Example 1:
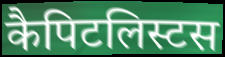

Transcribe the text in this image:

कैपिटलिस्टस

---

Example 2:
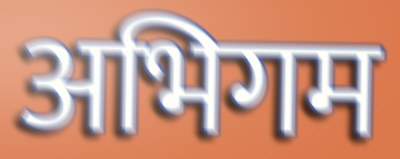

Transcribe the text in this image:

अभिगम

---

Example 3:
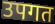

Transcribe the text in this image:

उपगत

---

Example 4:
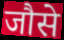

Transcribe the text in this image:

जौसे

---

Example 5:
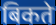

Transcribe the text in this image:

बिकते